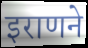
इराणने